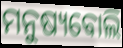
ମନୁଷ୍ୟବୋଲି